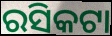
ରସିକଟା